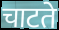
चाटते